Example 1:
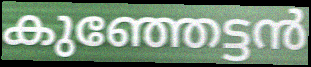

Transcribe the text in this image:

കുഞ്ഞേട്ടൻ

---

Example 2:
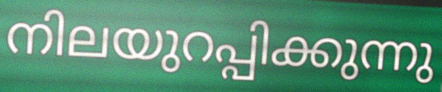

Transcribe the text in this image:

നിലയുറപ്പിക്കുന്നു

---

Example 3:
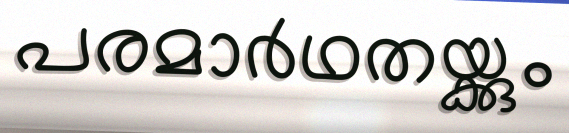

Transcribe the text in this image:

പരമാർഥതയ്ക്കും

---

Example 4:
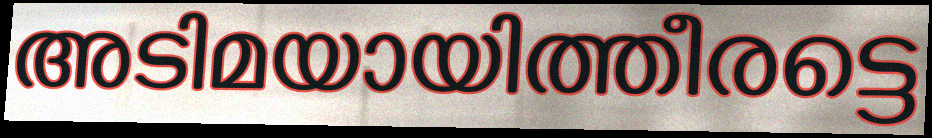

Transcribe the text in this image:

അടിമയായിത്തീരട്ടെ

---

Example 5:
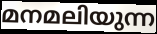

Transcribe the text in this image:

മനമലിയുന്ന